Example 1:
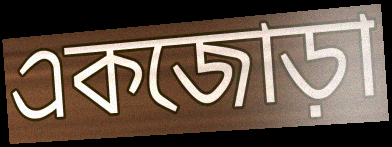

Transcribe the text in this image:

একজোড়া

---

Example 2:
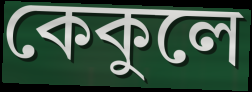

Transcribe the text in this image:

কেকুলে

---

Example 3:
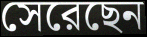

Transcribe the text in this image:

সেরেছেন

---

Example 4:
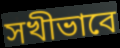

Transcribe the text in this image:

সখীভাবে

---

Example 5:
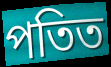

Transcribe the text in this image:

পতিত